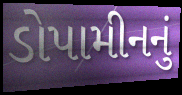
ડોપામીનનું